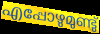
എപ്പോഴുമുണ്ടു്